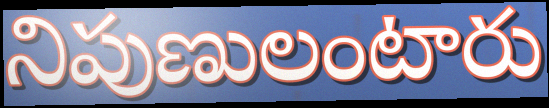
నిపుణులంటారు